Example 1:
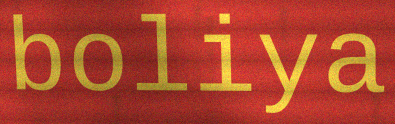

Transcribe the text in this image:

boliya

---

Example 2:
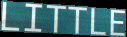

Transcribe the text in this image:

LITTLE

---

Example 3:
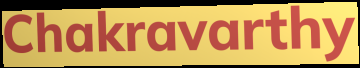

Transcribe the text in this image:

Chakravarthy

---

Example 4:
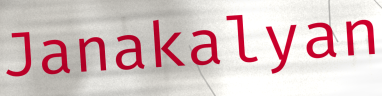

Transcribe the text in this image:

Janakalyan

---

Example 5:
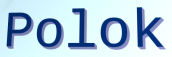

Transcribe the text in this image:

Polok